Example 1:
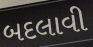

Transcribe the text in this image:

બદલાવી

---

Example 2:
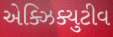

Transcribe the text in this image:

એક્ઝિક્યુટીવ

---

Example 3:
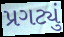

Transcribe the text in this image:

પ્રગટ્યું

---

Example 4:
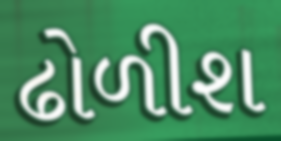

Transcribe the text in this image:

ઢોળીશ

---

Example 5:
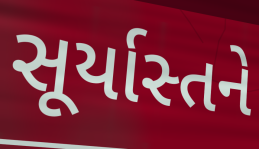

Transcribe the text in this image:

સૂર્યાસ્તને